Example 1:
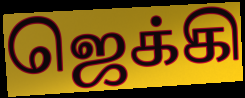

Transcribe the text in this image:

ஜெக்கி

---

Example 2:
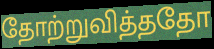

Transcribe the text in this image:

தோற்றுவித்ததோ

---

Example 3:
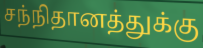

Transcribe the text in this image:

சந்நிதானத்துக்கு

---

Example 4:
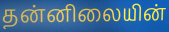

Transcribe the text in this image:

தன்னிலையின்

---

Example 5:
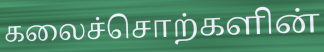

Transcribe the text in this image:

கலைச்சொற்களின்